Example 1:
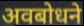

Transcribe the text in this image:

अवबोधने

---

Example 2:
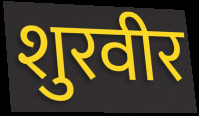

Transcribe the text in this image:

शुरवीर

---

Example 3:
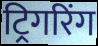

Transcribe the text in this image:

ट्रिगरिंग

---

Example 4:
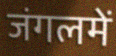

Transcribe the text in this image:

जंगलमें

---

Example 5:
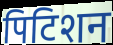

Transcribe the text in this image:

पिटिशन